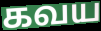
கவய